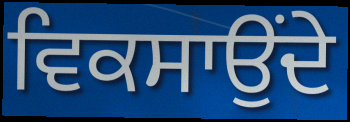
ਵਿਕਸਾਉਂਦੇ